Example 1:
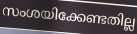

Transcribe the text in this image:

സംശയിക്കേണ്ടതില്ല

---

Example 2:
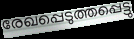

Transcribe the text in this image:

രേഖപ്പെടുത്തപ്പെട്ടു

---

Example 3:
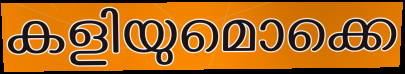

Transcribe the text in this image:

കളിയുമൊക്കെ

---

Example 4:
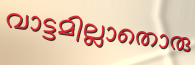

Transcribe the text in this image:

വാട്ടമില്ലാതൊരു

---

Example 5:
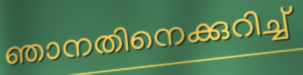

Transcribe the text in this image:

ഞാനതിനെക്കുറിച്ച്